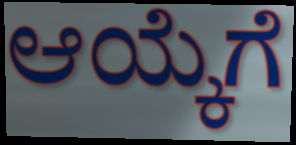
ಆಯ್ಕೆಗೆ